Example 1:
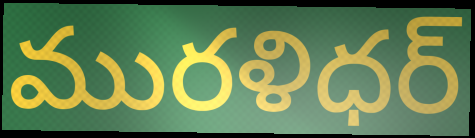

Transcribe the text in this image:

మురళిధర్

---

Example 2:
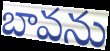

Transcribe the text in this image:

బావను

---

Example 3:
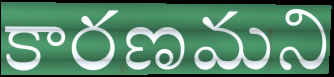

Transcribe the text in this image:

కారణమని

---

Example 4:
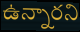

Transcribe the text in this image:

ఉన్నారని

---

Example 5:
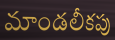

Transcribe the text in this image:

మాండలీకపు